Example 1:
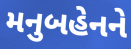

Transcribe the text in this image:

મનુબહેનને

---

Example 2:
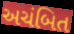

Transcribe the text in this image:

અચંબિત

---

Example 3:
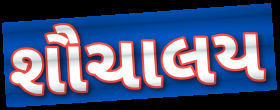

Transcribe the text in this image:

શૌચાલય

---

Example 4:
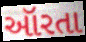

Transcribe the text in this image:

ઑરતા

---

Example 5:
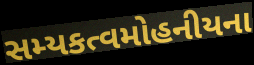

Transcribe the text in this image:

સમ્યકત્વમોહનીયના